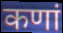
कणां